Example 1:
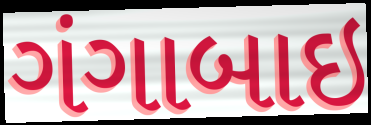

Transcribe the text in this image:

ગંગાબાઇ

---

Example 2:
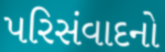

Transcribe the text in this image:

પરિસંવાદનો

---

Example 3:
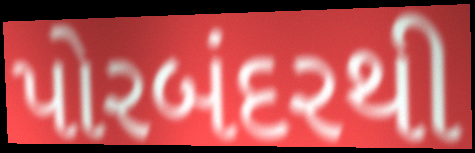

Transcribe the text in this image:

પોરબંદરથી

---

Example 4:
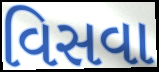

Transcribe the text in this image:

વિસવા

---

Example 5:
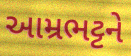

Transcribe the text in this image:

આમ્રભટ્ટને